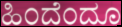
ಹಿಂದೆಂದೂ